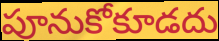
పూనుకోకూడదు